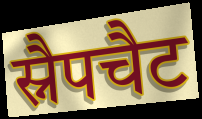
स्नैपचैट